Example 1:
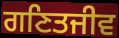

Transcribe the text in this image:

ਗਣਿਤਜੀਵ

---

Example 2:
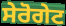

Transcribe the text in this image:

ਸੇਰੋਗੇਟ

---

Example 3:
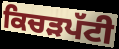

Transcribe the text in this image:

ਕਿਚੜਪੱਟੀ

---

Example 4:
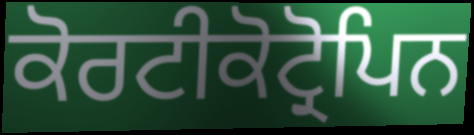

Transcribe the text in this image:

ਕੋਰਟੀਕੋਟ੍ਰੋਪਿਨ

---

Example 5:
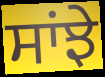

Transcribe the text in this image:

ਸਾਂਝੇ